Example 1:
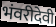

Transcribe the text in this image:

भंवरीदेवी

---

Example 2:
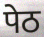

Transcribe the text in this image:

पेठ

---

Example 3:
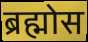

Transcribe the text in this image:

ब्रह्मोस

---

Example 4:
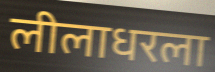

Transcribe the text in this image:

लीलाधरला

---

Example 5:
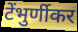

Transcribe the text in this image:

टेंभुर्णीकर